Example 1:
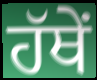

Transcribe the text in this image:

ਹੱਥੇਂ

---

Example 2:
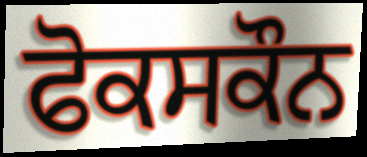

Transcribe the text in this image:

ਫੋਕਸਕੌਨ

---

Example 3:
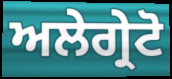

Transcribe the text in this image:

ਅਲੇਗ੍ਰੇਟੋ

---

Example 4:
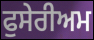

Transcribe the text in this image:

ਫੁਸੇਰੀਅਮ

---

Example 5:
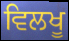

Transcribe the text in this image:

ਵਿਲਖੂ